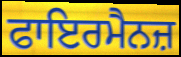
ਫਾਇਰਮੈਨਜ਼